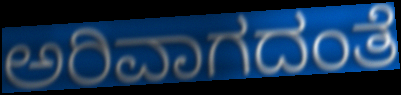
ಅರಿವಾಗದಂತೆ